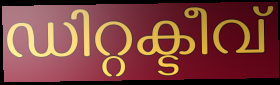
ഡിറ്റക്ടീവ്